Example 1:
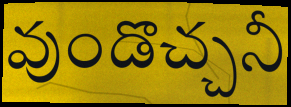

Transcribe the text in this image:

వుండొచ్చనీ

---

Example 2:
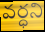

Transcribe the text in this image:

వర్ధని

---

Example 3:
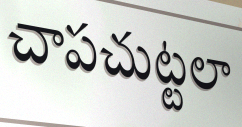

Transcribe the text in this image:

చాపచుట్టలా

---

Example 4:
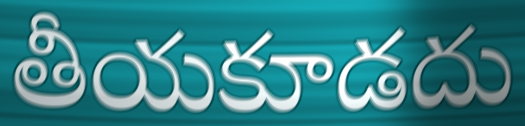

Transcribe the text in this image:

తీయకూడదు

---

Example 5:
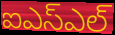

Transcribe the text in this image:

ఐఎస్ఎల్